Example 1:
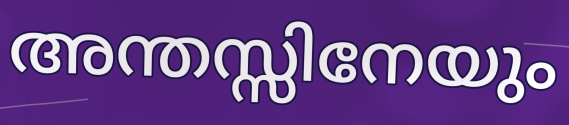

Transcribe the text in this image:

അന്തസ്സിനേയും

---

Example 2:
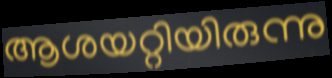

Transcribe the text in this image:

ആശയറ്റിയിരുന്നു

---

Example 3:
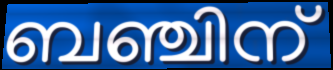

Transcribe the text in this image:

ബഞ്ചിന്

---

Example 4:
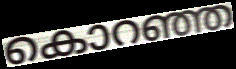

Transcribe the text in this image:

കൊറഞ്ഞ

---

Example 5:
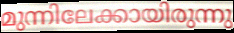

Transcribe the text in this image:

മുന്നിലേക്കായിരുന്നു